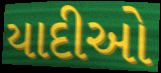
યાદીઓ